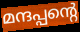
മന്ദപ്പന്റെ